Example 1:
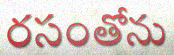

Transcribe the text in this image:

రసంతోను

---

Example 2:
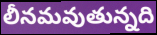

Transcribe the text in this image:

లీనమవుతున్నది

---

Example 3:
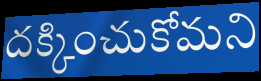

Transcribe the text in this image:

దక్కించుకోమని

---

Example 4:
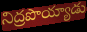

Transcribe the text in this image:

నిద్రపొయ్యాడు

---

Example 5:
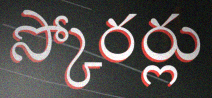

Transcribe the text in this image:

స్కోరర్లు